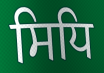
ਸਿਧਿ